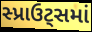
સ્પ્રાઉટ્સમાં